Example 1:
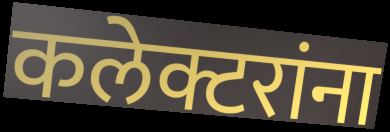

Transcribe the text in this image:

कलेक्टरांना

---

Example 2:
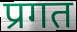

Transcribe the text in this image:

प्रगत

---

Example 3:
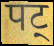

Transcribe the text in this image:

पट्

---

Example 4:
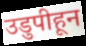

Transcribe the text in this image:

उडुपीहून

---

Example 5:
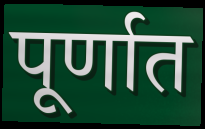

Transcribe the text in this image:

पूर्णात